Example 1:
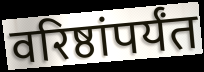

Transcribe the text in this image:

वरिष्ठांपर्यंत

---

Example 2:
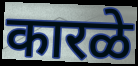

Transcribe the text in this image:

कारळे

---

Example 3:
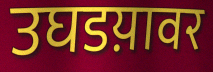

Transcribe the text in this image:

उघडय़ावर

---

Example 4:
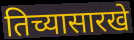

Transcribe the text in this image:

तिच्यासारखे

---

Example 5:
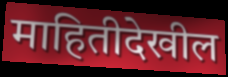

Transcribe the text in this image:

माहितीदेखील